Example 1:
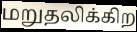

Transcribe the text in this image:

மறுதலிக்கிற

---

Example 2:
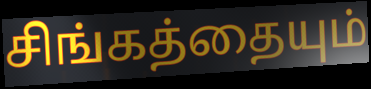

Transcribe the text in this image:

சிங்கத்தையும்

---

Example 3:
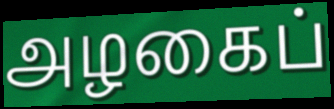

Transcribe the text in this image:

அழகைப்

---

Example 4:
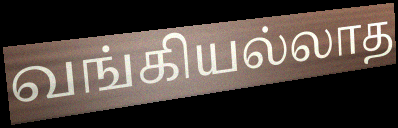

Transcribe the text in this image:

வங்கியல்லாத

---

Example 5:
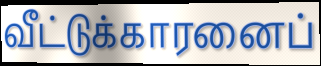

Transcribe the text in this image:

வீட்டுக்காரனைப்